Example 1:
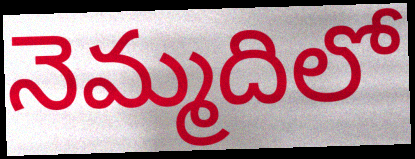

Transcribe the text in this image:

నెమ్మదిలో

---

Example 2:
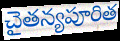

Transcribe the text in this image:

చైతన్యపూరిత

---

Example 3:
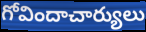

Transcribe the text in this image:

గోవిందాచార్యులు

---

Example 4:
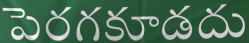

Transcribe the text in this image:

పెరగకూడదు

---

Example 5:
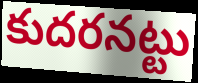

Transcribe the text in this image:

కుదరనట్టు